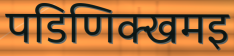
पडिणिक्खमइ